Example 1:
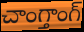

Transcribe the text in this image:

చాంగ్తాంగ్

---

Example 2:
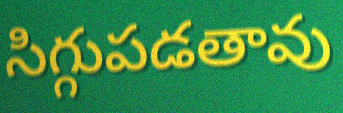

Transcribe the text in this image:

సిగ్గుపడతావు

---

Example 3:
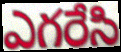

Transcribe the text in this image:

ఎగరేసి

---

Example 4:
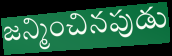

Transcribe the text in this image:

జన్మించినపుడు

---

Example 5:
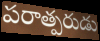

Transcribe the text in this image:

పరాత్పరుడు